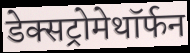
डेक्सट्रोमेथॉर्फन